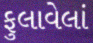
ફુલાવેલાં